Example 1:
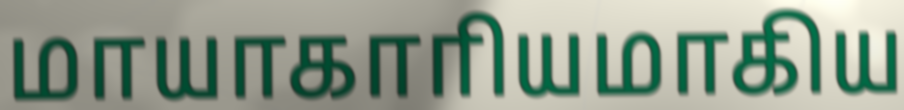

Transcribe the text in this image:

மாயாகாரியமாகிய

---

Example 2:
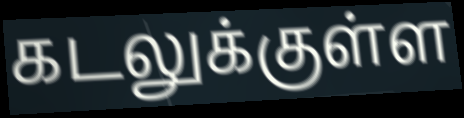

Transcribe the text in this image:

கடலுக்குள்ள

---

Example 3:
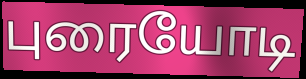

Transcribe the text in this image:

புரையோடி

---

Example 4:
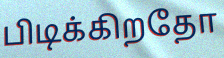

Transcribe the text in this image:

பிடிக்கிறதோ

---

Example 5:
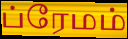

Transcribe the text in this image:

ப்ரேமம்